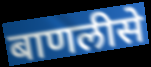
बाणलीसे